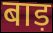
बाड़